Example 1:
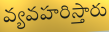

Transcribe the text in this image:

వ్యవహరిస్తారు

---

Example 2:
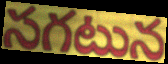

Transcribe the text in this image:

సగటున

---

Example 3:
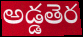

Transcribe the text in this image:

అడ్డతెర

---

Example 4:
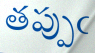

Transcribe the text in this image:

తప్పుఁ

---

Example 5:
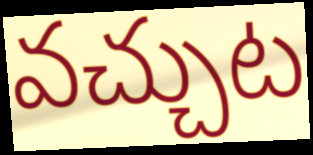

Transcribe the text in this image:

వచ్చుట